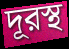
দূরস্থ